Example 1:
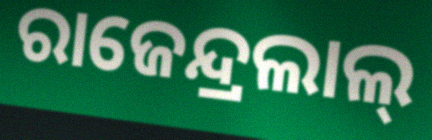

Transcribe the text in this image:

ରାଜେନ୍ଦ୍ରଲାଲ୍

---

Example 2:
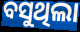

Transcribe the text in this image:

ବସୁଥିଲା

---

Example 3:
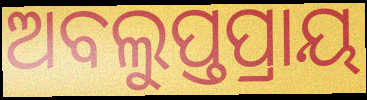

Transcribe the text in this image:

ଅବଲୁପ୍ତପ୍ରାୟ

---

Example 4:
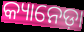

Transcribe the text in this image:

କ୍ୟାନେଡ଼ା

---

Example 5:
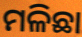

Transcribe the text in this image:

ମଳିଛା